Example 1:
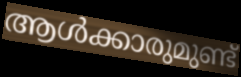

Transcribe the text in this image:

ആൾക്കാരുമുണ്ട്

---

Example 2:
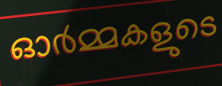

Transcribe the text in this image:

ഓർമ്മകളുടെ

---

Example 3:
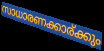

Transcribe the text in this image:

സാധാരണക്കാര്ക്കും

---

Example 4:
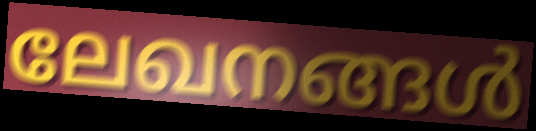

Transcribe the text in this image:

ലേഖനങ്ങൾ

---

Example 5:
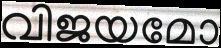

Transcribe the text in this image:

വിജയമോ